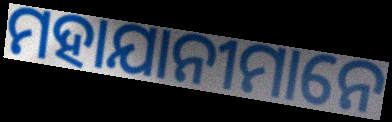
ମହାଯାନୀମାନେ